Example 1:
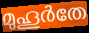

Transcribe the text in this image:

മുഹൂർതേ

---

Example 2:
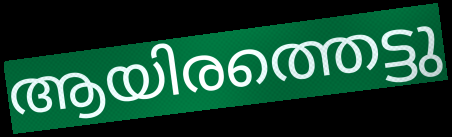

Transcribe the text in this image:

ആയിരത്തെട്ടു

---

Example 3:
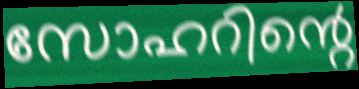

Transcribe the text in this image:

സോഹറിന്റെ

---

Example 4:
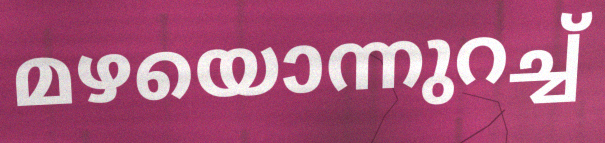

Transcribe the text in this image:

മഴയൊന്നുറച്ച്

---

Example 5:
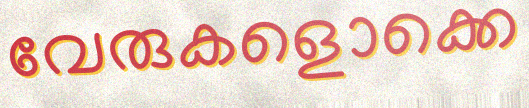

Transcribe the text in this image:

വേരുകളൊക്കെ